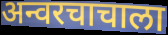
अन्वरचाचाला